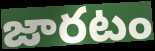
జారటం